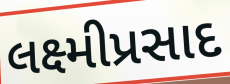
લક્ષ્મીપ્રસાદ